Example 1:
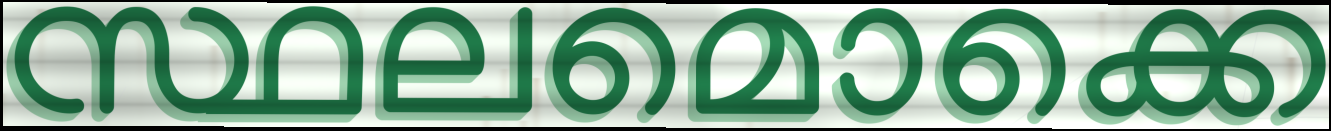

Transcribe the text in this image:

സ്ഥലമൊക്കെ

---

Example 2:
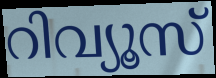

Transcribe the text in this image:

റിവ്യൂസ്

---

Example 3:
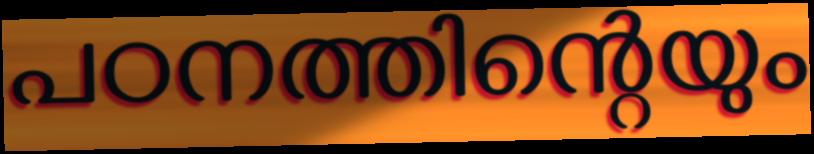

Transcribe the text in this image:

പഠനത്തിന്റെയും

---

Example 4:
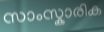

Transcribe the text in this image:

സാംസ്കാരിക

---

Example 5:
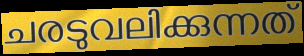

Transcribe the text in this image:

ചരടുവലിക്കുന്നത്